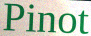
Pinot